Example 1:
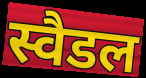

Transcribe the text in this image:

स्वैडल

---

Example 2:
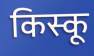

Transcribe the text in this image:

किस्कू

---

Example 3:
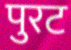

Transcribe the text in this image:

पुरट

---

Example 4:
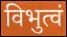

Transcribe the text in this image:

विभुत्वं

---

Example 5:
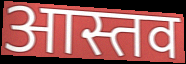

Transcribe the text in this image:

आस्तव